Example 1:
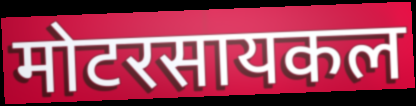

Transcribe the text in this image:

मोटरसायकल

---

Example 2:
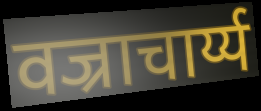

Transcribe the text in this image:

वज्राचार्य्य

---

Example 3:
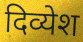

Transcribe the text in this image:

दिव्येश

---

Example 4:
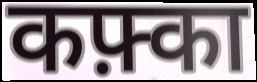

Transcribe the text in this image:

कफ़्का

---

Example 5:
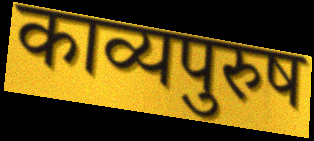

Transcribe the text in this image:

काव्यपुरुष